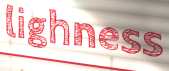
lighness